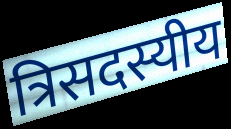
त्रिसदस्यीय